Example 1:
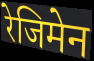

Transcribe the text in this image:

रेजिमेन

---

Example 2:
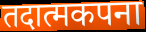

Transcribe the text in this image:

तदात्मकपना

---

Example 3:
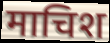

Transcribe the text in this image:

माचिश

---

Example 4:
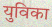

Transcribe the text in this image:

युविका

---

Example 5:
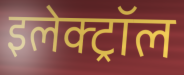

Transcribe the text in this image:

इलेक्ट्रॉल